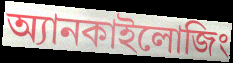
অ্যানকাইলোজিং